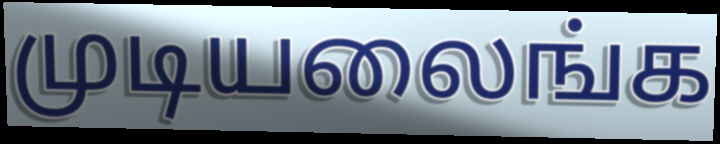
முடியலைங்க